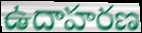
ఉదాహరణ